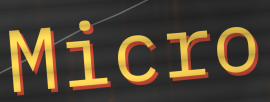
Micro